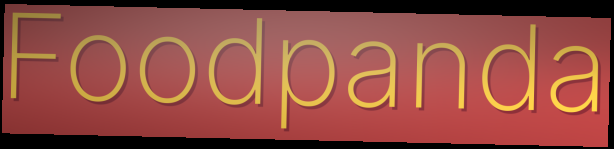
Foodpanda